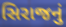
સિરાજનું